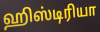
ஹிஸ்டிரியா